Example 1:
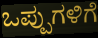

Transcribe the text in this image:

ಒಪ್ಪುಗಳಿಗೆ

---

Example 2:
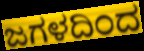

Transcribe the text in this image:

ಜಗಳದಿಂದ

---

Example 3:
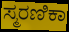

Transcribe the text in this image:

ಸ್ಮರಣಿಕಾ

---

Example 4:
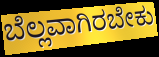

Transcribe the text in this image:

ಬೆಲ್ಲವಾಗಿರಬೇಕು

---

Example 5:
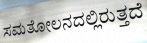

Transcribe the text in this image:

ಸಮತೋಲನದಲ್ಲಿರುತ್ತದೆ